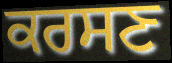
ਕਰਸਣ